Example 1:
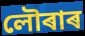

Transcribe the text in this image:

লৌৰাৰ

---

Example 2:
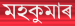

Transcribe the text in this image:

মহকুমাৰ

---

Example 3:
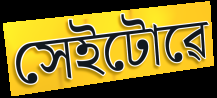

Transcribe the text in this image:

সেইটোৱে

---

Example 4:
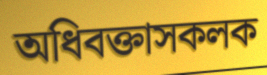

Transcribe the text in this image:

অধিবক্তাসকলক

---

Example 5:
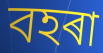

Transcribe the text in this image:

বহৰা